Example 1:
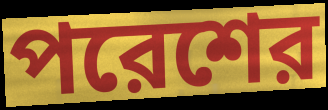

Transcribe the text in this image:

পরেশের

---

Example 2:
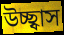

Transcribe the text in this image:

উচ্ছ্বাস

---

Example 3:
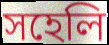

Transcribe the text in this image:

সহেলি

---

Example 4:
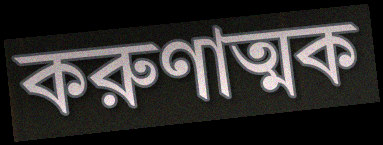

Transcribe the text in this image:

করুণাত্মক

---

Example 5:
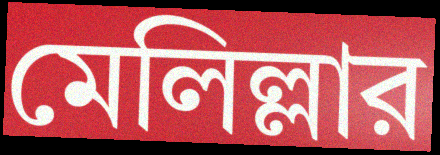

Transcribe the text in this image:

মেলিল্লার